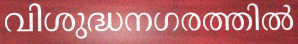
വിശുദ്ധനഗരത്തിൽ